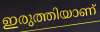
ഇരുത്തിയാണ്